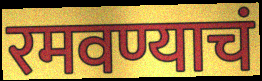
रमवण्याचं